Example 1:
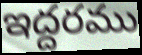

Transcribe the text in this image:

ఇద్దరము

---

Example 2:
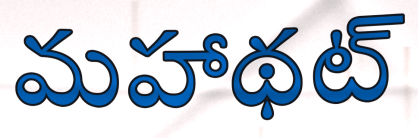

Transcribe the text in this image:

మహాథట్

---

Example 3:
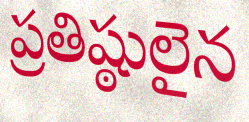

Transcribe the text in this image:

ప్రతిష్ఠులైన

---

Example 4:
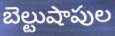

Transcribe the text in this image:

బెల్టుషాపుల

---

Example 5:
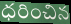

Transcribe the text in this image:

ధరించిన